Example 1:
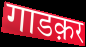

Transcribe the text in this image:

गाडक़र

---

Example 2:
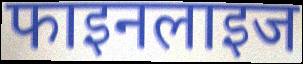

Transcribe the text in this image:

फाइनलाइज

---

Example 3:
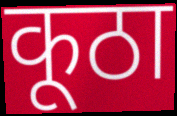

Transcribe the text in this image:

कूठा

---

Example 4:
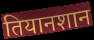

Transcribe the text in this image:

तियानशान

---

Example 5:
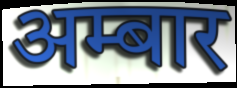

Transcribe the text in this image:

अम्बार